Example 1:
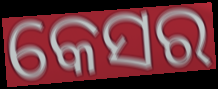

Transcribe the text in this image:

କେସର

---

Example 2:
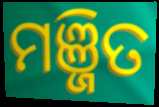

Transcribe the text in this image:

ମଞ୍ଜିତ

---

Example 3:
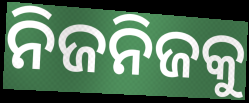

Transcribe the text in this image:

ନିଜନିଜକୁ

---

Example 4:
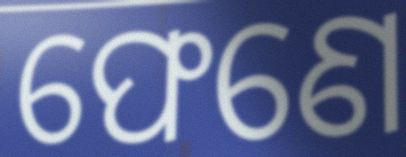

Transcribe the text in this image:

ଫେଣେ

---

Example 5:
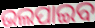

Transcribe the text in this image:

ଭଲପାଇବ